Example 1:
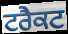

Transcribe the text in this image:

ਟਰੈਕਟ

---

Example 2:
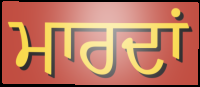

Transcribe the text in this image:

ਮਾਰਦਾਂ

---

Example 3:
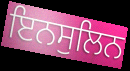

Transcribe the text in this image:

ਇਨਸੁਲਿਨ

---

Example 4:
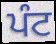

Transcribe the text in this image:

ਪੰਟ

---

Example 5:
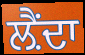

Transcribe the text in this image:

ਲ਼ੈਂਦਾ